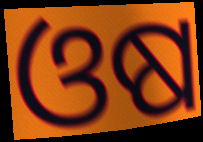
ଓଷ